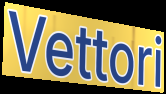
Vettori